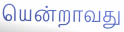
யென்றாவது